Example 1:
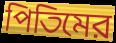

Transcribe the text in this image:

পিতিমের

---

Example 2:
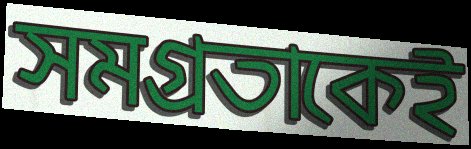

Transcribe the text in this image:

সমগ্রতাকেই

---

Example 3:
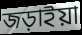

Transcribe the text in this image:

জড়াইয়া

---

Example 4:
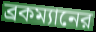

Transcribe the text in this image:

ব্রকম্যানের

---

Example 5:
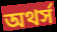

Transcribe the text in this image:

অথর্স